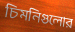
চিমনিগুলোর